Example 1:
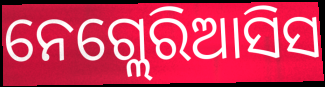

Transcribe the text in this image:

ନେଗ୍ଲେରିଆସିସ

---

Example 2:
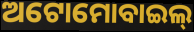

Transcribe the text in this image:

ଅଟୋମୋବାଇଲ୍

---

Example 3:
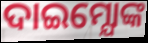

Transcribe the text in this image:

ଦାଇମ୍ଯୋଙ୍କ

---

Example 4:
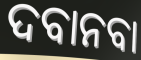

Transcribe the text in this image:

ଦବାନବା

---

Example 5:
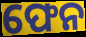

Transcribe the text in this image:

ଫେନ